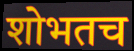
शोभतच